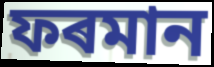
ফৰমান